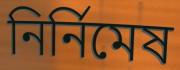
নির্নিমেষ